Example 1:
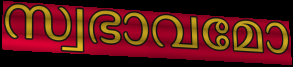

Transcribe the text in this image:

സ്വഭാവമോ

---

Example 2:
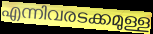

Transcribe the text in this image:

എന്നിവരടക്കമുള്ള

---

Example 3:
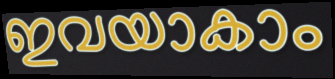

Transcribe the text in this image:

ഇവയാകാം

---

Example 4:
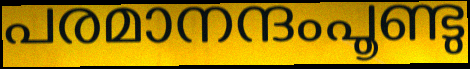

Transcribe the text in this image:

പരമാനന്ദംപൂണ്ടു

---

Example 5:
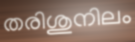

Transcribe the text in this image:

തരിശുനിലം